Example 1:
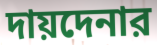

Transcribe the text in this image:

দায়দেনার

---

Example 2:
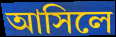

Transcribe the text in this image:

আসিলে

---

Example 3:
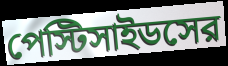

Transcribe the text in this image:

পেস্টিসাইডসের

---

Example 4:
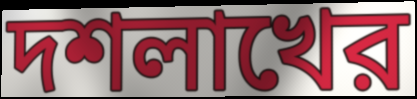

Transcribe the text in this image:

দশলাখের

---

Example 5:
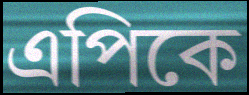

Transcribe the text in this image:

এপিকে